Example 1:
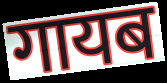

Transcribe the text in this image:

गायब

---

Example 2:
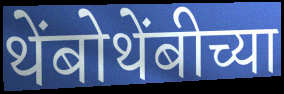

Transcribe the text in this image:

थेंबोथेंबीच्या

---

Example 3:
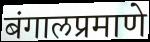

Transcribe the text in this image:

बंगालप्रमाणे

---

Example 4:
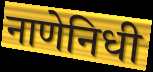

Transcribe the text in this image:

नाणेनिधी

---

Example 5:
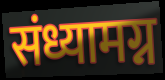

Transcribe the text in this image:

संध्यामग्न